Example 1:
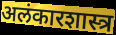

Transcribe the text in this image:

अलंकारशास्त्र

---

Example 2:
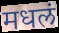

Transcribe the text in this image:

मधलं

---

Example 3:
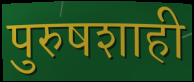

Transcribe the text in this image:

पुरुषशाही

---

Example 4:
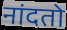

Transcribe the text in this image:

नांदतो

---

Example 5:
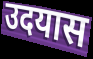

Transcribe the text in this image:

उदयास